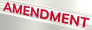
AMENDMENT